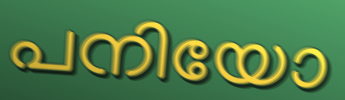
പനിയോ